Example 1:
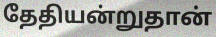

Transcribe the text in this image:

தேதியன்றுதான்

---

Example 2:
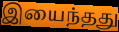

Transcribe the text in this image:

இயைந்தது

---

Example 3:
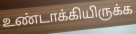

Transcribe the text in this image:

உண்டாக்கியிருக்க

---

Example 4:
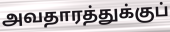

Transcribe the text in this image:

அவதாரத்துக்குப்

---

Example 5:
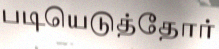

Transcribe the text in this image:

படியெடுத்தோர்